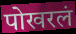
पोखरलं